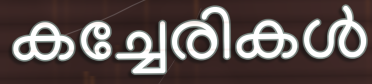
കച്ചേരികൾ